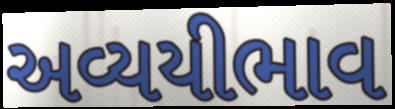
અવ્યયીભાવ